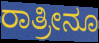
ರಾತ್ರೀನೂ